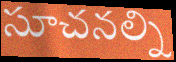
సూచనల్ని